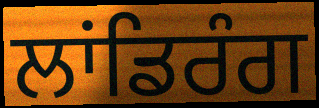
ਲਾਂਡਿਰੰਗ